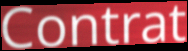
Contrat